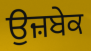
ਉਜ਼ਬੇਕ